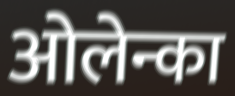
ओलेन्का